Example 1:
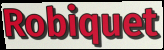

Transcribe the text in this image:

Robiquet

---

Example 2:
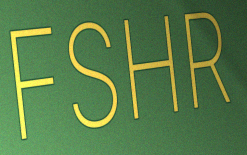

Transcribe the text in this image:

FSHR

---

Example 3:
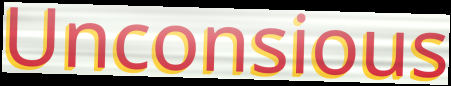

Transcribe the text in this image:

Unconsious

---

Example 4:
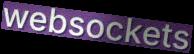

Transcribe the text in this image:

websockets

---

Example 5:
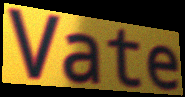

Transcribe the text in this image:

Vate